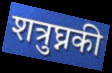
शत्रुघ्नकी